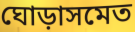
ঘোড়াসমেত